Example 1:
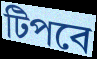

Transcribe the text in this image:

টিপবে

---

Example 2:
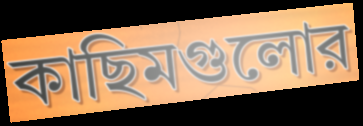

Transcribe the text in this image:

কাছিমগুলোর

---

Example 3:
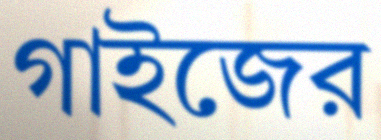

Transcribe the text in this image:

গাইজের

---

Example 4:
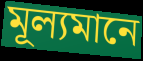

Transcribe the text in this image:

মূল্যমানে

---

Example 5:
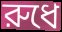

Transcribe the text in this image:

রুধে